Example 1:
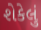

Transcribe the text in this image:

શેકેલું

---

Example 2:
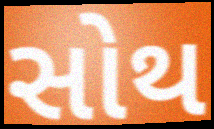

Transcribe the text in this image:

સોથ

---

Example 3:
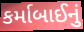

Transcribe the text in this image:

કર્માબાઈનું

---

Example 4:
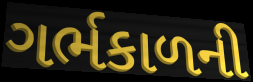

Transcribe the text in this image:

ગર્ભકાળની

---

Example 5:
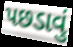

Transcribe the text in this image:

પછડાવું